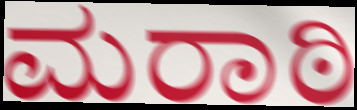
ಮರಾಠಿ